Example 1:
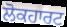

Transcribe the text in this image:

ਲੋਕਹਾਰਟ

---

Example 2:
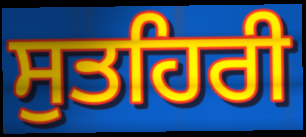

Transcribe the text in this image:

ਸੁਤਹਿਰੀ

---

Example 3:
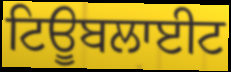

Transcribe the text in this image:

ਟਿਊਬਲਾਈਟ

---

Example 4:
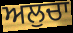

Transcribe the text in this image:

ਅਲੁਚਾ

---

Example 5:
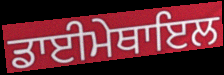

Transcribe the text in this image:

ਡਾਈਮੇਥਾਇਲ